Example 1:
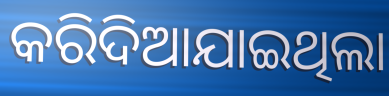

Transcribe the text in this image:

କରିଦିଆଯାଇଥିଲା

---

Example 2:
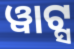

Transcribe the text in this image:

ୱାଟ୍ସ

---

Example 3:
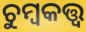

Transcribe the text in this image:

ଚୁମ୍ବକତ୍ତ୍ୱ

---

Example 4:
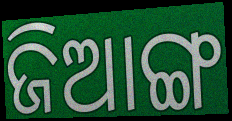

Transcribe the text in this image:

ଜିଆଙ୍ଗ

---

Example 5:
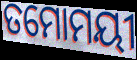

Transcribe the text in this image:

ତମୋମୟୀ